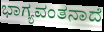
ಭಾಗ್ಯವಂತನಾದೆ